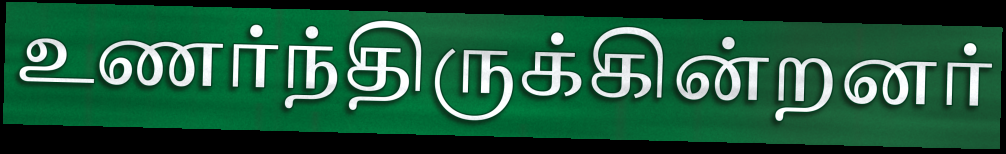
உணர்ந்திருக்கின்றனர்